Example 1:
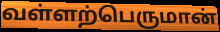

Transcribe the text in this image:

வள்ளற்பெருமான்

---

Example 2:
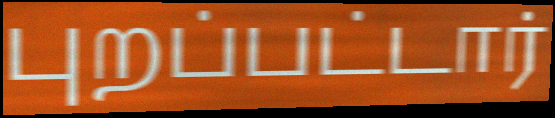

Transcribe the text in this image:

புறப்பட்டார்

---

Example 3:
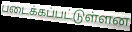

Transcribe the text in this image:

படைக்கப்பட்டுள்ளன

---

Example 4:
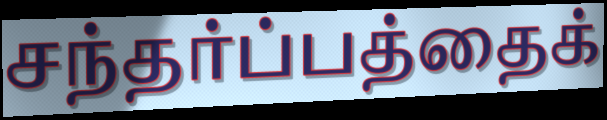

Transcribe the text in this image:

சந்தர்ப்பத்தைக்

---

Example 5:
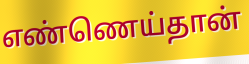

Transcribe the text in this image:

எண்ணெய்தான்